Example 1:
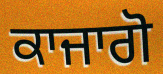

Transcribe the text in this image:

ਕਾਜਾਗੋ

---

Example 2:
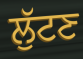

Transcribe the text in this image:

ਲੁੱਟਣ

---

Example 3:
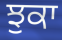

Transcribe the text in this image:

ਝੁਕਾ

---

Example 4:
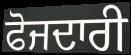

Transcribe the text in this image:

ਫੋਜਦਾਰੀ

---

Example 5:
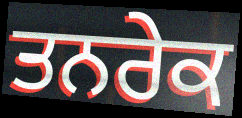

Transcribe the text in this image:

ਤਨਰੇਕ